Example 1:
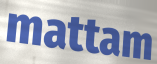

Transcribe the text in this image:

mattam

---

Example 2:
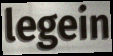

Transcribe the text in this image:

legein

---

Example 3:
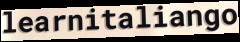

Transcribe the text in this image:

learnitaliango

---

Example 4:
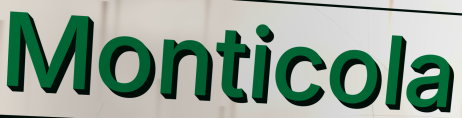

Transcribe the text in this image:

Monticola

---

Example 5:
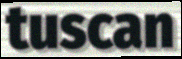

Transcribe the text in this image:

tuscan